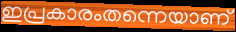
ഇപ്രകാരംതന്നെയാണ്